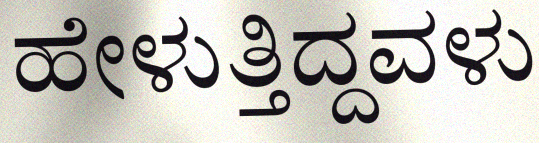
ಹೇಳುತ್ತಿದ್ದವಳು